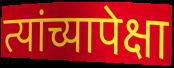
त्यांच्यापेक्षा